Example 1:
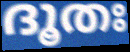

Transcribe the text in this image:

ദൂതഃ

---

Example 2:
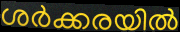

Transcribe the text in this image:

ശർക്കരയിൽ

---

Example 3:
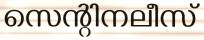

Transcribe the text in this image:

സെന്റിനലീസ്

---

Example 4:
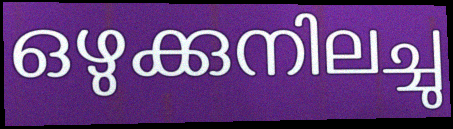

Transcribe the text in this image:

ഒഴുക്കുനിലച്ചു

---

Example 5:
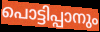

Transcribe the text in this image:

പൊട്ടിപ്പാനും